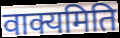
वाक्यमिति